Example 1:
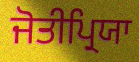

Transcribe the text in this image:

ਜੋਤੀਪ੍ਰਿਯਾ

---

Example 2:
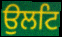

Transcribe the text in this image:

ਉਲਟਿ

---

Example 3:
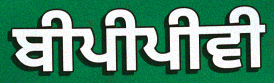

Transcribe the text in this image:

ਬੀਪੀਪੀਵੀ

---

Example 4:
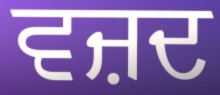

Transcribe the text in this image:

ਵਜ਼ਦ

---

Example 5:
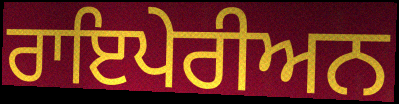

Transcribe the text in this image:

ਰਾਇਪੇਰੀਅਨ